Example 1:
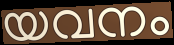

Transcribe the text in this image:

യവനം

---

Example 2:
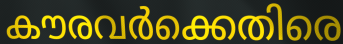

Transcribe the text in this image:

കൗരവർക്കെതിരെ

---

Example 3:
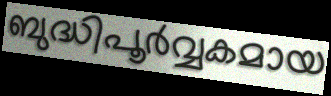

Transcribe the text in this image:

ബുദ്ധിപൂർവ്വകമായ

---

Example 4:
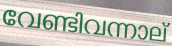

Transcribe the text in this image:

വേണ്ടിവന്നാല്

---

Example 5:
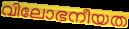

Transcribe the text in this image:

വിലോഭനീയത